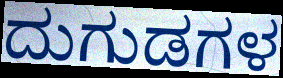
ದುಗುಡಗಳ